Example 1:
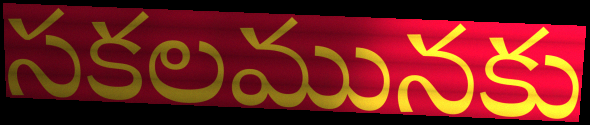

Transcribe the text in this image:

సకలమునకు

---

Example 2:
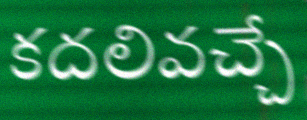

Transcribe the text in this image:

కదలివచ్చే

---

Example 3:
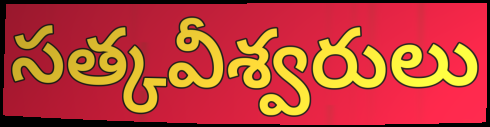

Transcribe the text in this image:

సత్కవీశ్వరులు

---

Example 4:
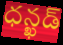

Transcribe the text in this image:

ధన్ఖడ్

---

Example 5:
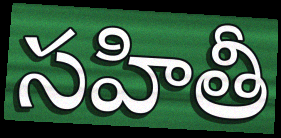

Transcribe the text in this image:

సహితీ